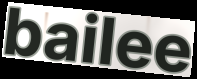
bailee